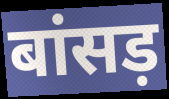
बांसड़